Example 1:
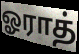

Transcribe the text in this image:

ஓராத்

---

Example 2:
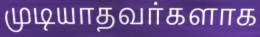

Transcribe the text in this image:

முடியாதவர்களாக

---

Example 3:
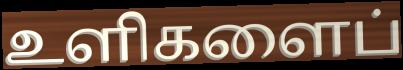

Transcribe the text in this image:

உளிகளைப்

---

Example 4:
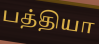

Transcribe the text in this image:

பத்தியா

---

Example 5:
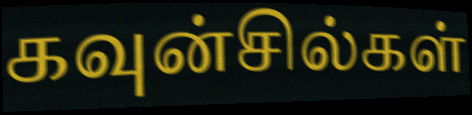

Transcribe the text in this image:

கவுன்சில்கள்